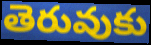
తెరువుకు